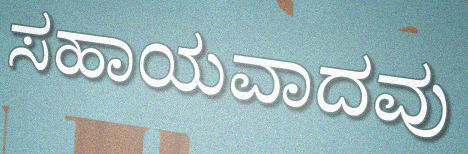
ಸಹಾಯವಾದವು